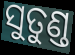
ସୁତୁଣ୍ଡ